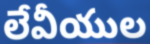
లేవీయుల